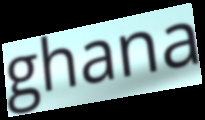
ghana